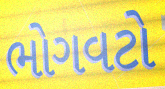
ભોગવટો